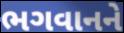
ભગવાનને